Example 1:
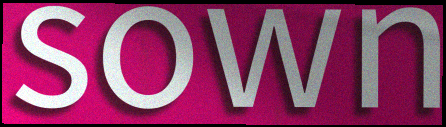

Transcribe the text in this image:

sown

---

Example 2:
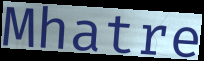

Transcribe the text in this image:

Mhatre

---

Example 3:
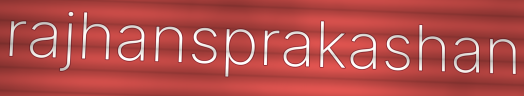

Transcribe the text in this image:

rajhansprakashan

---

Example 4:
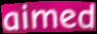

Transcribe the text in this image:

aimed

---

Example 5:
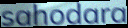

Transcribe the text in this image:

sahodara